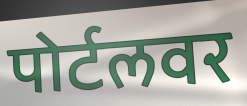
पोर्टलवर